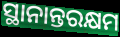
ସ୍ଥାନାନ୍ତରକ୍ଷମ